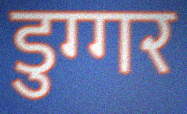
डुग्गर